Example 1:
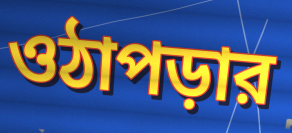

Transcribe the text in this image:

ওঠাপড়ার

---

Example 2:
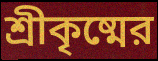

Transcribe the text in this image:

শ্রীকৃষ্মের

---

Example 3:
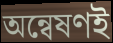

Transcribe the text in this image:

অন্বেষণই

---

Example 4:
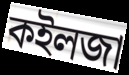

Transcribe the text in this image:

কইলজা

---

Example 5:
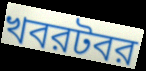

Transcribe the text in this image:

খবরটবর